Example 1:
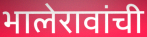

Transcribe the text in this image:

भालेरावांची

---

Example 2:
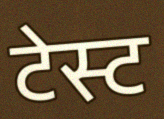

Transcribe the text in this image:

टेस्ट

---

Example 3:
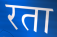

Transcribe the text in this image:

रता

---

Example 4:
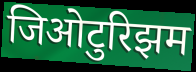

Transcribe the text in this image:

जिओटुरिझम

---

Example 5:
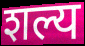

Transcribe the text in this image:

शल्य